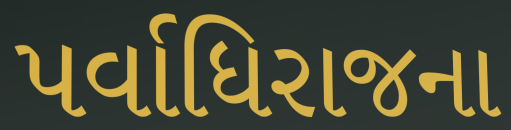
પર્વાધિરાજના